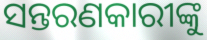
ସନ୍ତରଣକାରୀଙ୍କୁ